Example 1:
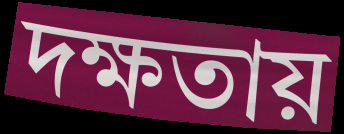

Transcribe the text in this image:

দক্ষতায়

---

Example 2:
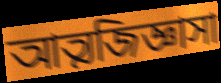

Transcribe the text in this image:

আত্মজিজ্ঞাসা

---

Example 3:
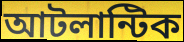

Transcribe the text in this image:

আটলান্টিক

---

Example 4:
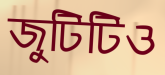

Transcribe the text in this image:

জুটিটিও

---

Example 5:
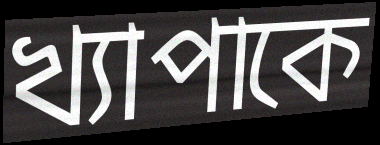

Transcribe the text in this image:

খ্যাপাকে